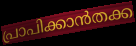
പ്രാപിക്കാൻതക്ക